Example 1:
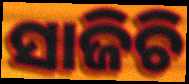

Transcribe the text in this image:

ସାଜିଚି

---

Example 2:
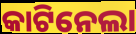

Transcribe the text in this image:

କାଟିନେଲା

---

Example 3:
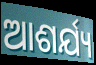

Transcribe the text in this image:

ଆଶର୍ଯ୍ୟ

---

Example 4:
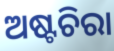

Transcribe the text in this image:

ଅଷ୍ଟଚିରା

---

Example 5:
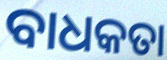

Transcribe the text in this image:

ବାଧକତା